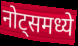
नोट्समध्ये